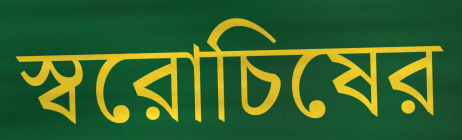
স্বরোচিষের